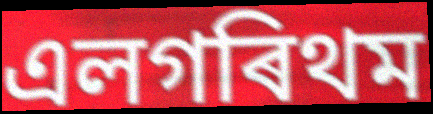
এলগৰিথম